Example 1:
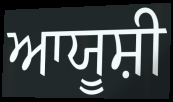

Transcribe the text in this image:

ਆਯੂਸ਼ੀ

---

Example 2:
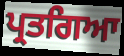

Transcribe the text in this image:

ਪ੍ਰਤਗਿਆ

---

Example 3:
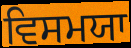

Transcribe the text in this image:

ਵਿਸਮਯਾ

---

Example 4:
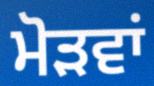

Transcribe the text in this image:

ਮੋੜਵਾਂ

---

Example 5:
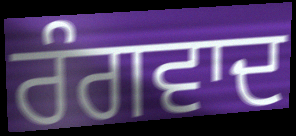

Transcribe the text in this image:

ਰੰਗਵਾਦ